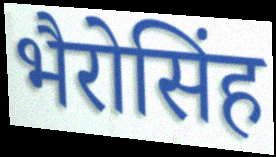
भैरोसिंह